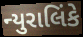
ન્યુરાલિંકે